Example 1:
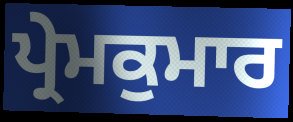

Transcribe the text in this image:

ਪ੍ਰੇਮਕੁਮਾਰ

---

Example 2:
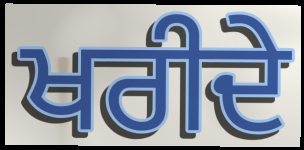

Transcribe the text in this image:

ਖਰੀਦੇ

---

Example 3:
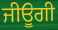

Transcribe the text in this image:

ਜੀਊਗੀ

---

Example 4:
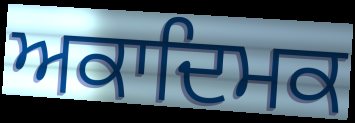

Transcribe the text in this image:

ਅਕਾਦਿਮਕ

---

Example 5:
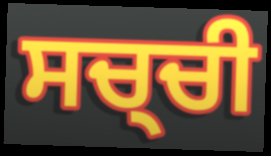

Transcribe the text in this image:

ਸਚ੍ਚੀ